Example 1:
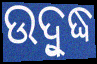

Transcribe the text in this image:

ଉଦ୍ବୁଦ୍ଧ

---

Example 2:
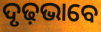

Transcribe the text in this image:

ଦୃଢ଼ଭାବେ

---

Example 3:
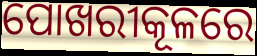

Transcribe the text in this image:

ପୋଖରୀକୂଳରେ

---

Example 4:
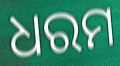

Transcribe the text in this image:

ଧରମ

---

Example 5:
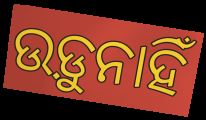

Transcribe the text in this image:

ଉଡ଼ୁନାହିଁ